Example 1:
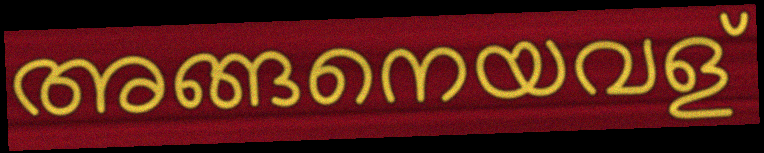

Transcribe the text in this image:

അങ്ങനെയവള്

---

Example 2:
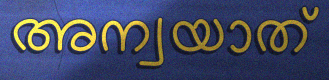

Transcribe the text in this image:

അന്വയാത്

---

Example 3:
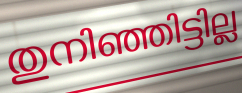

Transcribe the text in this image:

തുനിഞ്ഞിട്ടില്ല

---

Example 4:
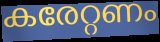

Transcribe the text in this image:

കരേറ്റണം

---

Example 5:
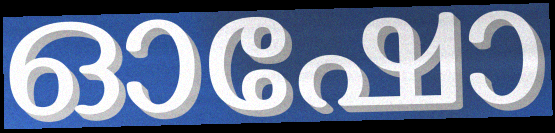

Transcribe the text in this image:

ഓഷോ